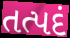
તત્પદં